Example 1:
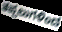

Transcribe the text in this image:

ತಪ್ಪಲುಗಳಿಂದ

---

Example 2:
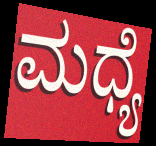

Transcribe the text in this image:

ಮಧ್ಯೆ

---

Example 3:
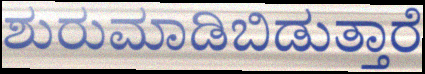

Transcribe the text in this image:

ಶುರುಮಾಡಿಬಿಡುತ್ತಾರೆ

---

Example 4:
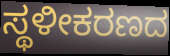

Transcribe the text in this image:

ಸ್ಥಳೀಕರಣದ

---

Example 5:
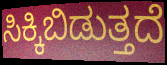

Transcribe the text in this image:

ಸಿಕ್ಕಿಬಿಡುತ್ತದೆ